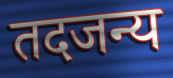
तदजन्य